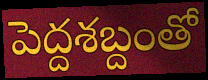
పెద్దశబ్దంతో